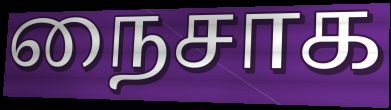
நைசாக